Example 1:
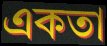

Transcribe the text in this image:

একতা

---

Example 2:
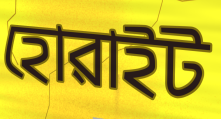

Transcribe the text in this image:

হোৱাইট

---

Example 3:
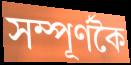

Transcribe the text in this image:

সম্পূৰ্ণকৈ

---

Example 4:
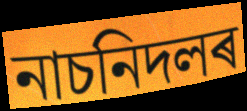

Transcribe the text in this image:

নাচনিদলৰ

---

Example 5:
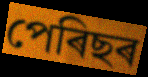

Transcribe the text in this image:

পেৰিছৰ